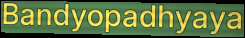
Bandyopadhyaya